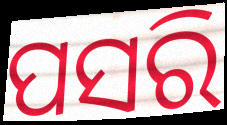
ପସରି